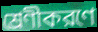
শ্রেণীকরণে